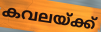
കവലയ്ക്ക്